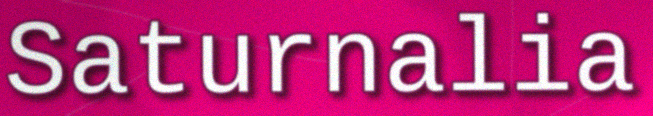
Saturnalia